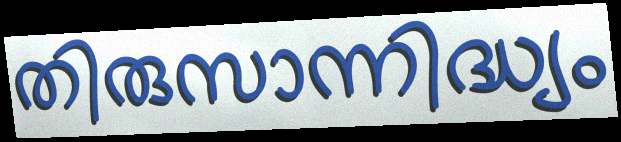
തിരുസാന്നിദ്ധ്യം